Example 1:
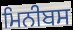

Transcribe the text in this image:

ਮਿਨੀਬਸ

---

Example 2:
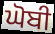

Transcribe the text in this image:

ਘੋਬੀ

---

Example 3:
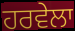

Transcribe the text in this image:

ਹਰਵੇਲਾ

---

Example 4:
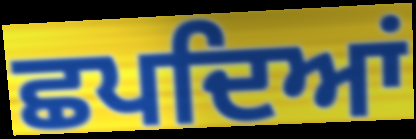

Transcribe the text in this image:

ਛਪਦਿਆਂ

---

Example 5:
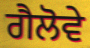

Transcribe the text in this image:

ਗੈਲੋਵੇ